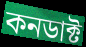
কনডাক্ট